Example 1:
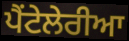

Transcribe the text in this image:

ਪੈਂਟੇਲੇਰੀਆ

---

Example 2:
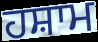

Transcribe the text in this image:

ਹਸ਼ਾਮ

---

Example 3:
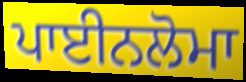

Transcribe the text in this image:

ਪਾਈਨਲੋਮਾ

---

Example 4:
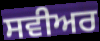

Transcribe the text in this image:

ਸਵੀਅਰ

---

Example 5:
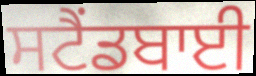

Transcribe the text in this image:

ਸਟੈਂਡਬਾਈ